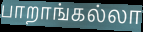
பாறாங்கல்லா